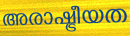
അരാഷ്ട്രീയത